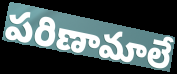
పరిణామాలే